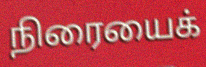
நிரையைக்